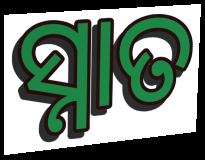
ସ୍ନାତ